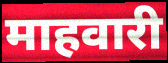
माहवारी